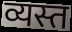
व्‍यस्‍त